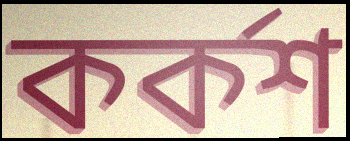
কর্কশ